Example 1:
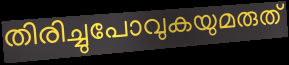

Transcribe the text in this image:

തിരിച്ചുപോവുകയുമരുത്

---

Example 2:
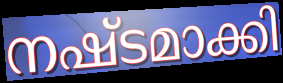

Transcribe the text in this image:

നഷ്ടമാക്കി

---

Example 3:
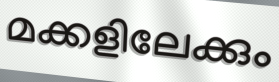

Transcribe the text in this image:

മക്കളിലേക്കും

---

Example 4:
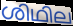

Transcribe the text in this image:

ശിഥില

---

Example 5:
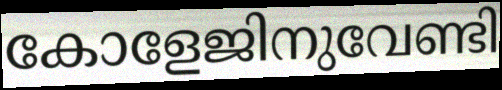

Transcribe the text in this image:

കോളേജിനുവേണ്ടി